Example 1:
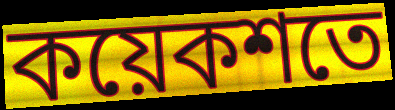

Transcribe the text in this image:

কয়েকশতে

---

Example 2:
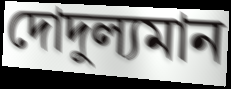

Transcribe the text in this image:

দোদুল্যমান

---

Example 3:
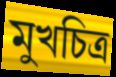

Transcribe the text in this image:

মুখচিত্র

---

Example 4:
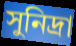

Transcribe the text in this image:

সুনিদ্রা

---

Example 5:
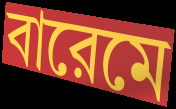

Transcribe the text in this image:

বারেমে